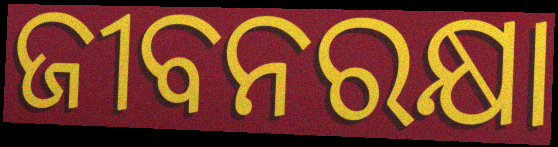
ଜୀବନରକ୍ଷା